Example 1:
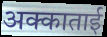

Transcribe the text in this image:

अक्काताई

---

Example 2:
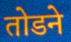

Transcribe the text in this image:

तोडने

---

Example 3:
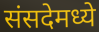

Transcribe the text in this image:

संसदेमध्ये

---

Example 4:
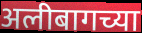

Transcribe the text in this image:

अलीबागच्या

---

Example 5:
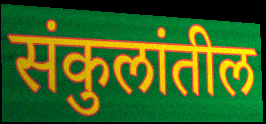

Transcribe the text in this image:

संकुलांतील